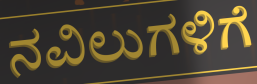
ನವಿಲುಗಳಿಗೆ